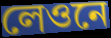
লেওনে